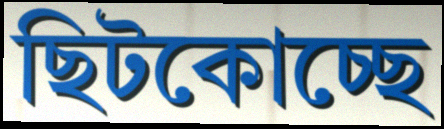
ছিটকোচ্ছে